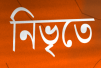
নিভৃতে